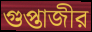
গুপ্তাজীর